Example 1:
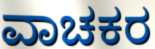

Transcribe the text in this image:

ವಾಚಕರ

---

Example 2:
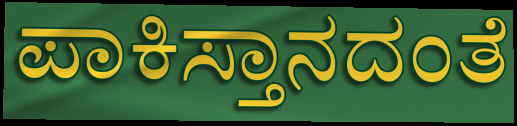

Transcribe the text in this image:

ಪಾಕಿಸ್ತಾನದಂತೆ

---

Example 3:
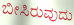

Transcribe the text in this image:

ಬೀಸಿರುವುದು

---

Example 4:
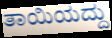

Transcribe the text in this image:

ತಾಯಿಯದ್ದು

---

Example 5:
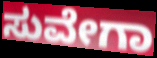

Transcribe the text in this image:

ಸುವೇಗಾ